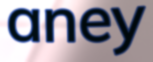
aney